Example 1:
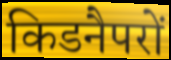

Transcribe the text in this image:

किडनैपरों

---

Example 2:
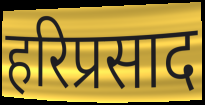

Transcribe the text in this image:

हरिप्रसाद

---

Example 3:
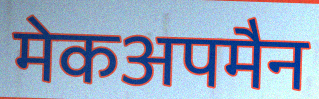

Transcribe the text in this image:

मेकअपमैन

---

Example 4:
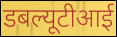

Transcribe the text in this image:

डबल्यूटीआई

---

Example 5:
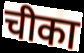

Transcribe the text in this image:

चीका